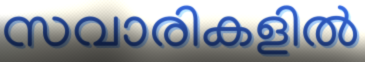
സവാരികളിൽ